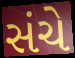
સંચે